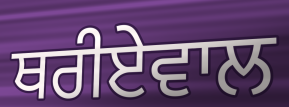
ਥਰੀਏਵਾਲ